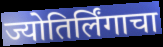
ज्योतिर्लिंगाचा